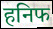
हनिफ